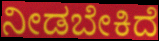
ನೀಡಬೇಕಿದೆ